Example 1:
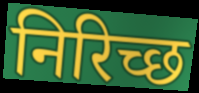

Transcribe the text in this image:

निरिच्छ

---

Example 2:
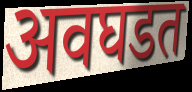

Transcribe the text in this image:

अवघडत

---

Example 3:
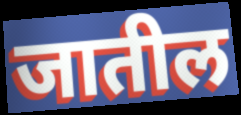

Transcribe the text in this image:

जातील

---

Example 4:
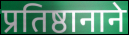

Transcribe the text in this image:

प्रतिष्ठानाने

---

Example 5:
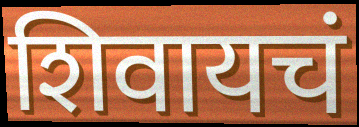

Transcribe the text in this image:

शिवायचं